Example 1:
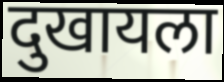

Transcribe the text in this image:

दुखायला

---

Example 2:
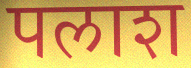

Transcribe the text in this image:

पलाश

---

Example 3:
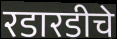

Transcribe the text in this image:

रडारडीचे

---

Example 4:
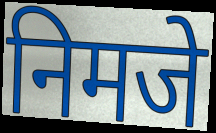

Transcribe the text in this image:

निमजे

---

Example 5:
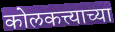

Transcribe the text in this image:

कोलकत्त्याच्या